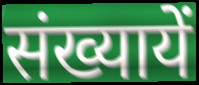
संख्यायें